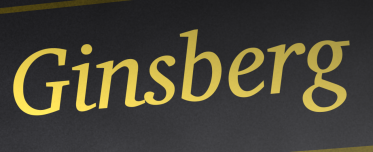
Ginsberg